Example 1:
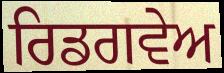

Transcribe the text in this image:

ਰਿਡਗਵੇਅ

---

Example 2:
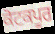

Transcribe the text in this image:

ਕੋਟਕਪੂਰ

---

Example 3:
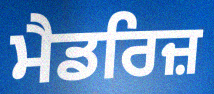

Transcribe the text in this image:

ਮੈਡਰਿਜ਼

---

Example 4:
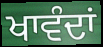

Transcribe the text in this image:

ਖਾਵੰਦਾਂ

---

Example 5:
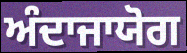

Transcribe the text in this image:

ਅੰਦਾਜਾਯੋਗ